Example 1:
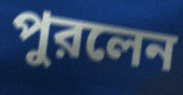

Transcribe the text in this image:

পুরলেন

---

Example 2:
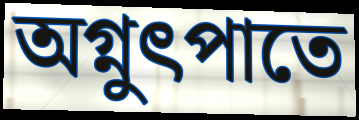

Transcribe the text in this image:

অগ্নুৎপাতে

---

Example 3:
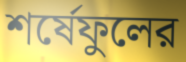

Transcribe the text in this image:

শর্ষেফুলের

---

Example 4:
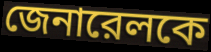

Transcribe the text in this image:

জেনারেলকে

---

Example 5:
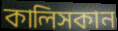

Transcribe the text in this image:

কালিসকান